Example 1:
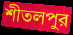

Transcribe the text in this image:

শীতলপুর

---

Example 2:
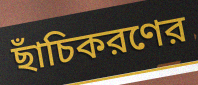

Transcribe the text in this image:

ছাঁচিকরণের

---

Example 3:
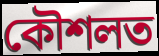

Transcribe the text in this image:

কৌশলত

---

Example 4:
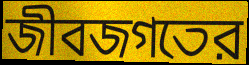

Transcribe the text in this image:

জীবজগতের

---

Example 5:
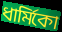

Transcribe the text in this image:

ধার্মিকো